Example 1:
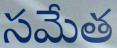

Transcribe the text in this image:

సమేత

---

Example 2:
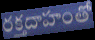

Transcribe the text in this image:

రక్తదాహంతో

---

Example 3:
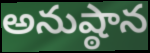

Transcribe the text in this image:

అనుష్ఠాన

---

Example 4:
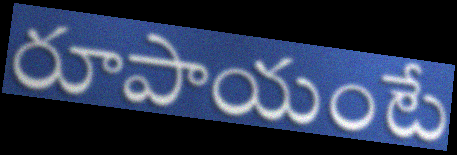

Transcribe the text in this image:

రూపాయంటే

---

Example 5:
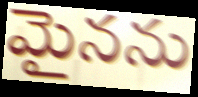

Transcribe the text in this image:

మైనను